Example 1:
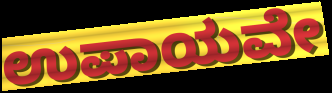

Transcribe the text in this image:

ಉಪಾಯವೇ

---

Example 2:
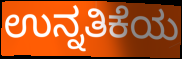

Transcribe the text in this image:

ಉನ್ನತಿಕೆಯ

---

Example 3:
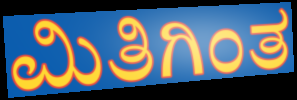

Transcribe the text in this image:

ಮಿತಿಗಿಂತ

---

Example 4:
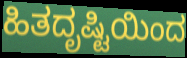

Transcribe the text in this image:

ಹಿತದೃಷ್ಟಿಯಿಂದ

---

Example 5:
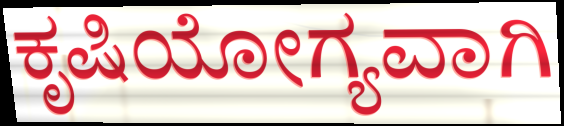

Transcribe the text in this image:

ಕೃಷಿಯೋಗ್ಯವಾಗಿ